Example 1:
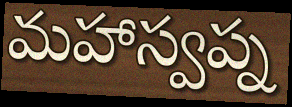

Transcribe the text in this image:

మహాస్వప్న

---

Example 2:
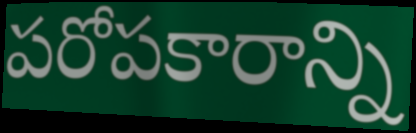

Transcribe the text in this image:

పరోపకారాన్ని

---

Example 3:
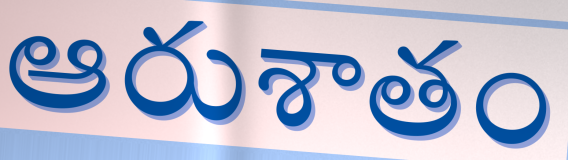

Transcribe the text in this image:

ఆరుశాతం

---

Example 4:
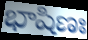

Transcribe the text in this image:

భాషిణః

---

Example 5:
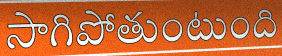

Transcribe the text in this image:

సాగిపోతుంటుంది